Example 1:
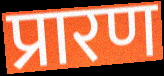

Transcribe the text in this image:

प्रारण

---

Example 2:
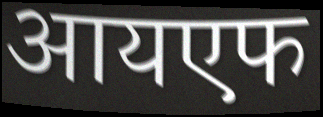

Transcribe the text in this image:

आयएफ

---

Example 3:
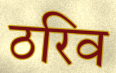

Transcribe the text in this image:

ठरिव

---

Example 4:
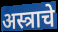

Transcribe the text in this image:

अस्त्राचे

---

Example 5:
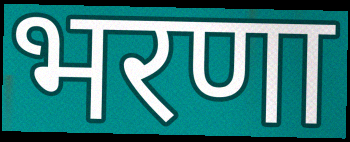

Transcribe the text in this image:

भरणा